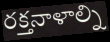
రక్తనాళాల్ని